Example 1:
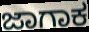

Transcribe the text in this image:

ಜಾಗಾಕ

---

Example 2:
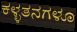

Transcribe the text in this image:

ಕಳ್ಳತನಗಳೂ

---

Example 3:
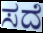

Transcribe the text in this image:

ಸದೆ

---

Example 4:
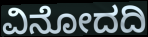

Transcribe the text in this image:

ವಿನೋದದಿ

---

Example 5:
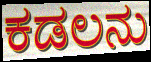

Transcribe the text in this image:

ಕಡಲನು